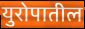
युरोपातील